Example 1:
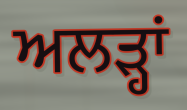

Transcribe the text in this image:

ਅਲੜ੍ਹਾਂ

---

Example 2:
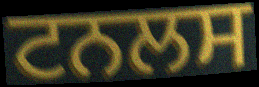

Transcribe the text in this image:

ਟਨਲਸ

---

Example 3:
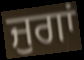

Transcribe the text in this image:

ਜੁਗਾਂ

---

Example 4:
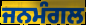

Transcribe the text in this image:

ਜਨਮੰਗਲ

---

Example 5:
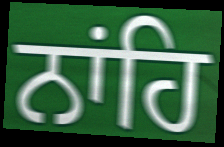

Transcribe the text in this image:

ਨਾਂਹਿ